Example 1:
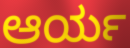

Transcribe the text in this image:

ಆರ್ಯ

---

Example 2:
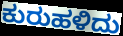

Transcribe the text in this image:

ಕುರುಹಳಿದು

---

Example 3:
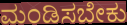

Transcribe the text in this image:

ಮಂಡಿಸಬೇಕು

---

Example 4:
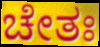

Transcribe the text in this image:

ಚೇತಃ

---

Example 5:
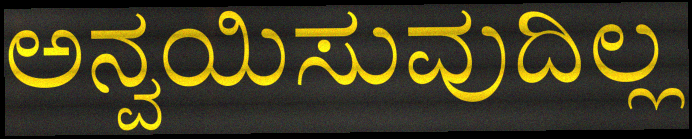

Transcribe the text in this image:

ಅನ್ವಯಿಸುವುದಿಲ್ಲ